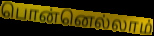
பொன்னெல்லாம்